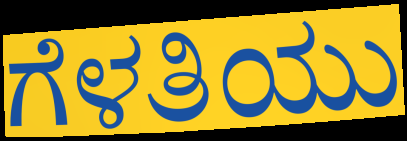
ಗೆಳತಿಯು